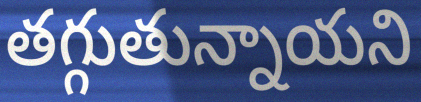
తగ్గుతున్నాయని